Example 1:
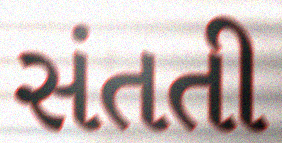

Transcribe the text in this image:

સંતતી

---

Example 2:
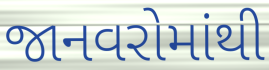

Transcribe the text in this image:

જાનવરોમાંથી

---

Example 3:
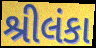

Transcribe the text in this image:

શ્રીલંકા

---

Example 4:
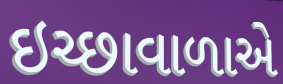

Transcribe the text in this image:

ઇચ્છાવાળાએ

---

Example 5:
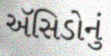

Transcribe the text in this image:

ઍસિડોનું